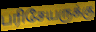
பரிசேயருக்கு